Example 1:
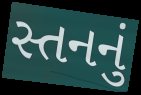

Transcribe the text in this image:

સ્તનનું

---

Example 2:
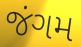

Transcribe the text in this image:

જંગમ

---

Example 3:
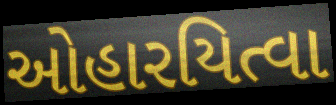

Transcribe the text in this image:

ઓહારયિત્વા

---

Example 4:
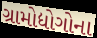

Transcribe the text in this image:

ગ્રામોદ્યોગોના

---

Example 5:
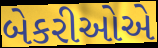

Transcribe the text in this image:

બેકરીઓએ